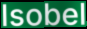
Isobel